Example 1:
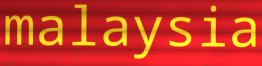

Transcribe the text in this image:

malaysia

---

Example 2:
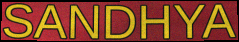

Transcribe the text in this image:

SANDHYA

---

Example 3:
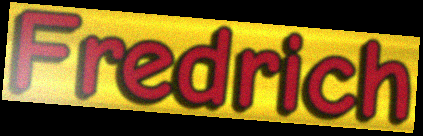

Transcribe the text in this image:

Fredrich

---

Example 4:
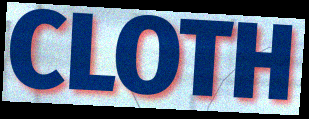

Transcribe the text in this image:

CLOTH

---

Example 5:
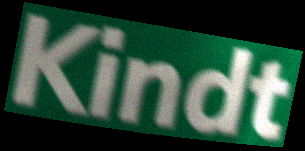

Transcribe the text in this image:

Kindt